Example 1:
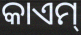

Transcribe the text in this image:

କାଏମ୍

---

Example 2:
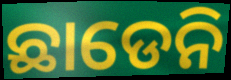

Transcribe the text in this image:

ଛାଡେନି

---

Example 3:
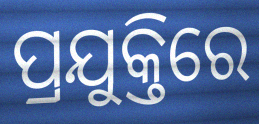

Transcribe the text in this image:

ପ୍ରଯୁକ୍ତିରେ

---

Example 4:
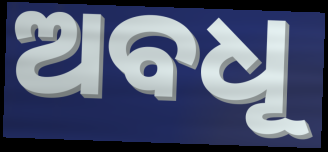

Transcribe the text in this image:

ଅବଧୂ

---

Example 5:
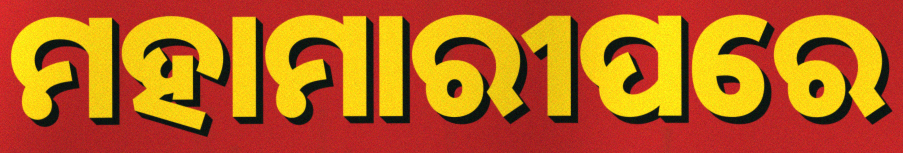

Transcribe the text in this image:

ମହାମାରୀପରେ